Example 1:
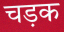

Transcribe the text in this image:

चड़क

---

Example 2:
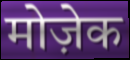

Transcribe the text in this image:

मोज़ेक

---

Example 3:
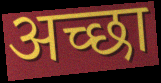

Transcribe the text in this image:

अच्छा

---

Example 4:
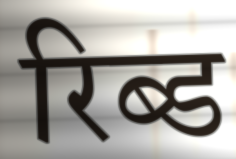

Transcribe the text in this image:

रिब्ड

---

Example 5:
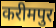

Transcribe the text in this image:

करीमपुर